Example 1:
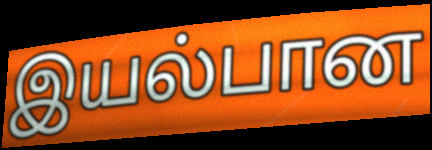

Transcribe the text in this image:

இயல்பான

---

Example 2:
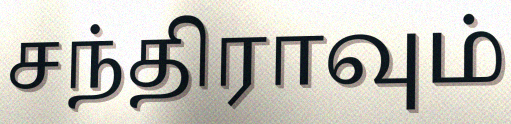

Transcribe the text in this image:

சந்திராவும்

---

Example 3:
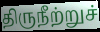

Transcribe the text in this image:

திருநீற்றுச்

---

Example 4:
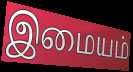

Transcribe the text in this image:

இமையம்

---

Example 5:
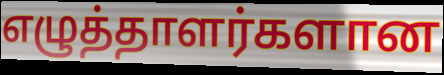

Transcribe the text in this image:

எழுத்தாளர்களான